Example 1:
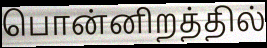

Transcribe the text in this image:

பொன்னிறத்தில்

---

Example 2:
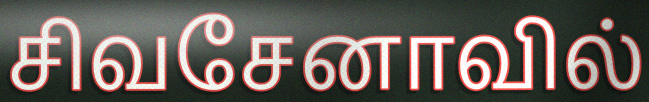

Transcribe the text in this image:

சிவசேனாவில்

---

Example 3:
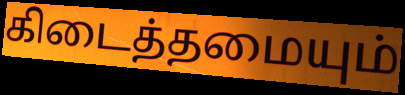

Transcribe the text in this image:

கிடைத்தமையும்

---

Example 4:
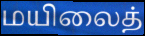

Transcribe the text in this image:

மயிலைத்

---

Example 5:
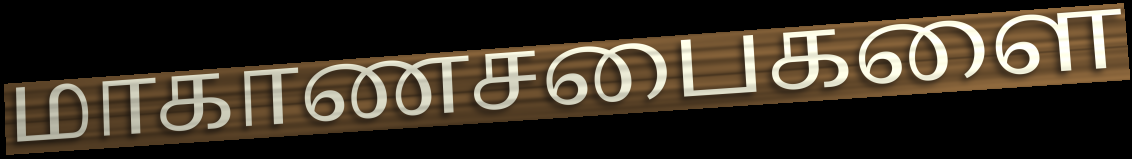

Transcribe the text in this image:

மாகாணசபைகளை